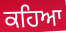
ਕਹਿਆ